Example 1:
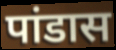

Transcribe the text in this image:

पांडास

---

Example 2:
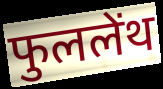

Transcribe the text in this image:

फुललेंथ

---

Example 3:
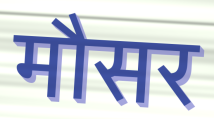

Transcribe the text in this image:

मौसर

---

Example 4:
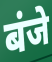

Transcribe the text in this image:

बंजे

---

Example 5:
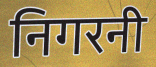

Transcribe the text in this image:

निगरनी